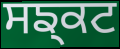
ਸਙ੍ਕਟ